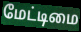
மேட்டிமை